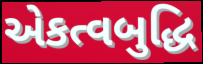
એકત્વબુદ્ધિ